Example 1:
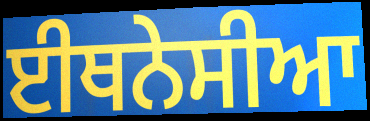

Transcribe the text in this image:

ਈਥਨੇਸੀਆ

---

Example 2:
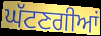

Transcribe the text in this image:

ਘੱਟਣਗੀਆਂ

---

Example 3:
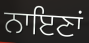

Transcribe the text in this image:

ਨਾਇਣਾਂ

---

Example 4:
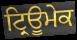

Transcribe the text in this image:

ਟ੍ਰਿਊਮੇਕ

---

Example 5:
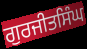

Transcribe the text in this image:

ਗੁਰਜੀਤਸਿੰਘ